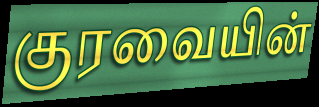
குரவையின்